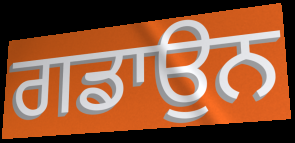
ਗਡਾਉਨ